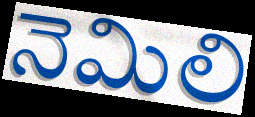
నెమిలి